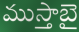
ముస్తాబై